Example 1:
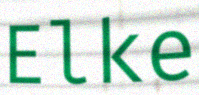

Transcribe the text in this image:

Elke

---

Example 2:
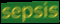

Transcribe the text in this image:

sepsis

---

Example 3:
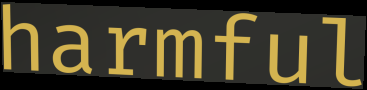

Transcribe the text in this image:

harmful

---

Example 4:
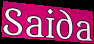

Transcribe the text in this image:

Saida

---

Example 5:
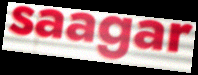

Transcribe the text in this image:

saagar